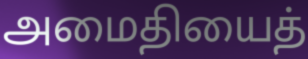
அமைதியைத்